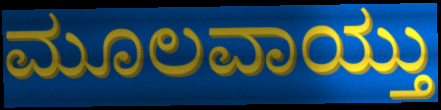
ಮೂಲವಾಯ್ತು